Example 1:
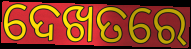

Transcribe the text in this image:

ଦେଖତରେ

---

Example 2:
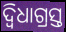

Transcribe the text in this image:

ଦ୍ୱିଧାଗ୍ରସ୍ତ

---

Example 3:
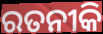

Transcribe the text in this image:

ରତନୀକି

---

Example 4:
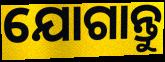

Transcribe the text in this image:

ଯୋଗାନ୍ତୁ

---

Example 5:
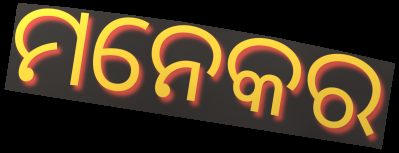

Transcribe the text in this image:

ମନେକର